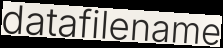
datafilename